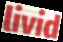
livid